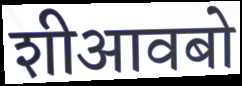
शीआवबो